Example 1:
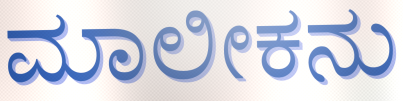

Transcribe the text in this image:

ಮಾಲೀಕನು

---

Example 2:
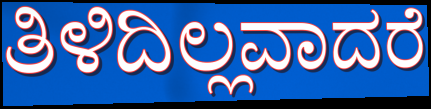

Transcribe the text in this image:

ತಿಳಿದಿಲ್ಲವಾದರೆ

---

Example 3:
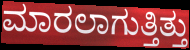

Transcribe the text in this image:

ಮಾರಲಾಗುತ್ತಿತ್ತು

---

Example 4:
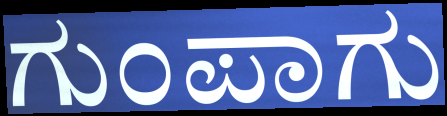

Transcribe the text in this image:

ಗುಂಪಾಗು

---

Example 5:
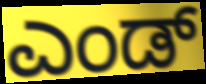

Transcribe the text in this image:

ಎಂಡ್